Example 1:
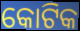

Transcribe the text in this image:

କୋଟିକ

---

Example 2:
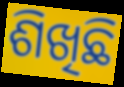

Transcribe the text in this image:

ଶିଖିଛି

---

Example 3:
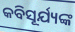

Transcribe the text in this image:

କବିସୂର୍ଯ୍ୟଙ୍କ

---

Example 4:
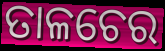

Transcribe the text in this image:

ତାଳଚେର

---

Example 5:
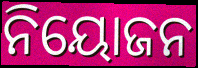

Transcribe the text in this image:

ନିୟୋଜନ